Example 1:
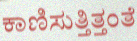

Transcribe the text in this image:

ಕಾಣಿಸುತ್ತಿತ್ತಂತೆ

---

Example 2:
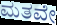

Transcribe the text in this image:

ಮತವೇ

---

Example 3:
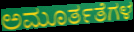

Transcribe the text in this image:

ಅಮೂರ್ತತೆಗಳ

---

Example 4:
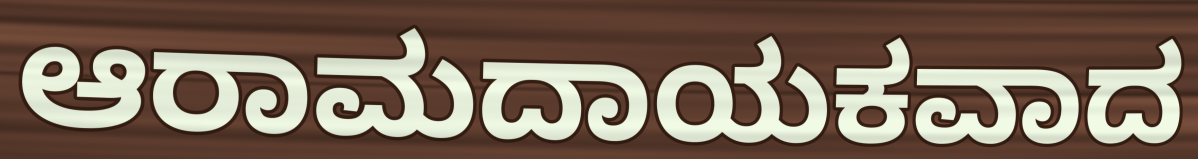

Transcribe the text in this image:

ಆರಾಮದಾಯಕವಾದ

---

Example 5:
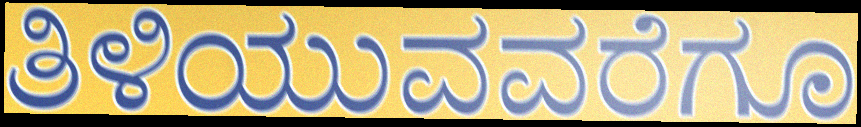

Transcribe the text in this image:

ತಿಳಿಯುವವರೆಗೂ